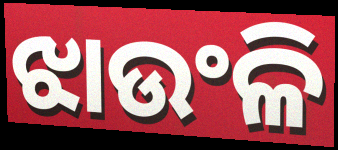
ଝାଉଂଳି